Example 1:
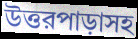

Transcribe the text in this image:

উত্তরপাড়াসহ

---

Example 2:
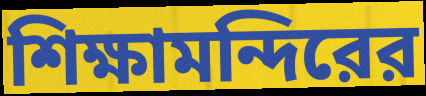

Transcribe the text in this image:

শিক্ষামন্দিরের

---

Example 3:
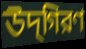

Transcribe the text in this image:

উদ্‌গিরণ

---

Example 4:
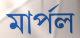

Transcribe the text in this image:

মার্পল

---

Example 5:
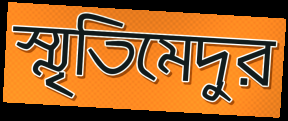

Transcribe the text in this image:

স্মৃতিমেদুর